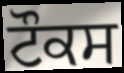
ਟੌਕਸ